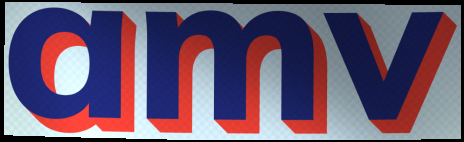
amv